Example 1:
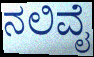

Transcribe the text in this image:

ನಲಿವೈ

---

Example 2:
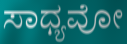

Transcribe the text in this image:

ಸಾಧ್ಯವೋ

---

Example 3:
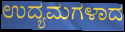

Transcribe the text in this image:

ಉದ್ಯಮಗಳಾದ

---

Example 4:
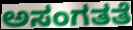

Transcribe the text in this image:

ಅಸಂಗತತೆ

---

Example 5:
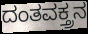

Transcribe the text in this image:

ದಂತವಕ್ತ್ರನ